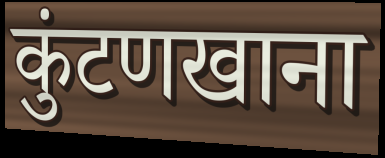
कुंटणखाना